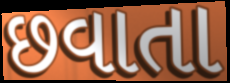
છવાતા